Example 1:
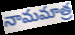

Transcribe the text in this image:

నామమాత్ర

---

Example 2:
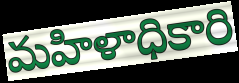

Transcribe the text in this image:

మహిళాధికారి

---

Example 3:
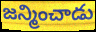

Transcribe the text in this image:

జన్మించాడు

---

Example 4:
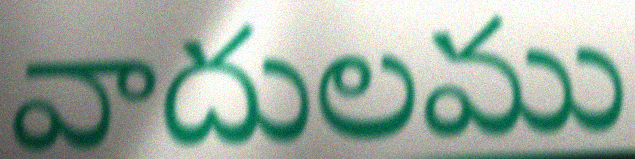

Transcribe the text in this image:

వాదులము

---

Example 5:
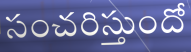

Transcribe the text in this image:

సంచరిస్తుందో